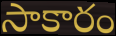
సాకారం